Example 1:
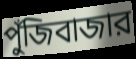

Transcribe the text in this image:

পুঁজিবাজার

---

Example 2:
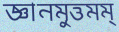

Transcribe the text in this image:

জ্ঞানমুত্তমম্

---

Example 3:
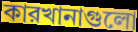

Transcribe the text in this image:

কারখানাগুলো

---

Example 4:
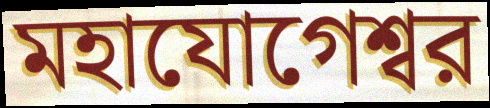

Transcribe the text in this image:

মহাযোগেশ্বর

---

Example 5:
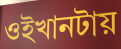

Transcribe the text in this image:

ওইখানটায়